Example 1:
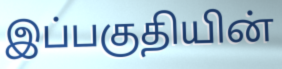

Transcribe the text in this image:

இப்பகுதியின்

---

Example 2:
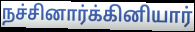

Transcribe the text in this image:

நச்சினார்க்கினியார்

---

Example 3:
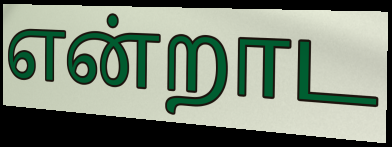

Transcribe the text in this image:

என்றாட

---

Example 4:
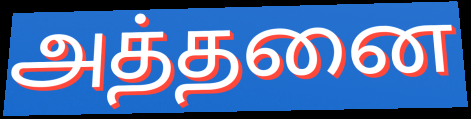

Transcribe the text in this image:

அத்தனை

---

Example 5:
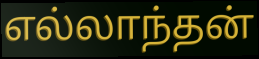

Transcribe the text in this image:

எல்லாந்தன்